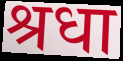
श्रधा